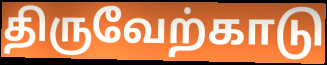
திருவேற்காடு